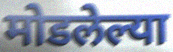
मोडलेल्या